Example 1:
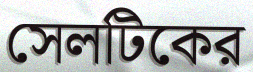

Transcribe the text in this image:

সেলটিকের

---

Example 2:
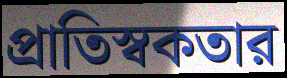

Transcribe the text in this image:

প্রাতিস্বকতার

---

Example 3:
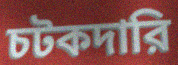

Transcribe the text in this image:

চটকদারি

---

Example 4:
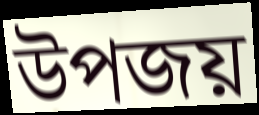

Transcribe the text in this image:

উপজয়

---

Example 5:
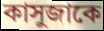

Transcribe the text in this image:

কাসুজাকে